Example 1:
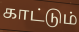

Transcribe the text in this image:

காட்டும்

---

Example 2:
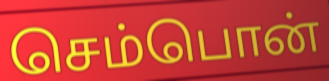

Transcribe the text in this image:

செம்பொன்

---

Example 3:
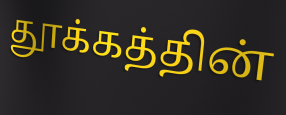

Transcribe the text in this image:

தூக்கத்தின்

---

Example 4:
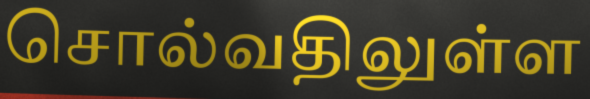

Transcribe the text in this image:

சொல்வதிலுள்ள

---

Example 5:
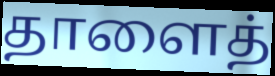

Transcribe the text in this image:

தாளைத்